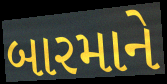
બારમાને